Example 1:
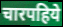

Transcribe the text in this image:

चारपहिये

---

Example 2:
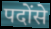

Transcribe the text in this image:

पदोंसे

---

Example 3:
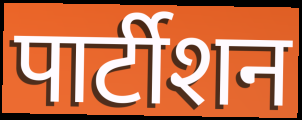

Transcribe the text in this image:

पार्टीशन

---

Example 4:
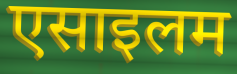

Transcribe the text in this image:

एसाइलम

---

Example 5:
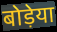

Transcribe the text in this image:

बोड़ेया